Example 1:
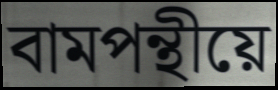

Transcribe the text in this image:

বামপন্থীয়ে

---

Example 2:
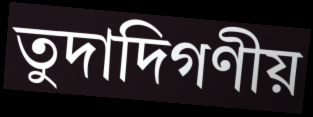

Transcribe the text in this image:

তুদাদিগণীয়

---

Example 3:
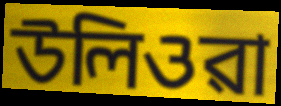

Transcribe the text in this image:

উলিওৱা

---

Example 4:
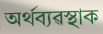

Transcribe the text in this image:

অৰ্থব্যৱস্থাক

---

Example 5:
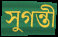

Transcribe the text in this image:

সুগন্তী